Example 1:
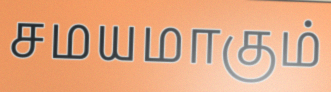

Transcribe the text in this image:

சமயமாகும்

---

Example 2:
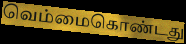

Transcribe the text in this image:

வெம்மைகொண்டது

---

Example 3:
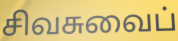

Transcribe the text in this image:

சிவசுவைப்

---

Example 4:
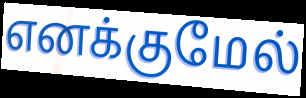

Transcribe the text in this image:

எனக்குமேல்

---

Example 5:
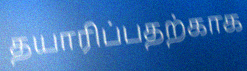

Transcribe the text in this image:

தயாரிப்பதற்காக